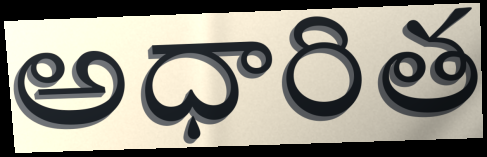
అధారిత